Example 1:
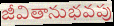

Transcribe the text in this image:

జీవితానుభవపు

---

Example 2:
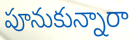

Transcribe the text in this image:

పూనుకున్నారా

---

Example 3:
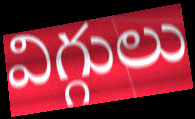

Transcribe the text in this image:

విగ్గులు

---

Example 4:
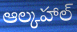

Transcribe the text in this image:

ఆల్కహాల్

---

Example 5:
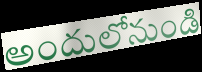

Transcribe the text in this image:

అందులోనుండి